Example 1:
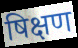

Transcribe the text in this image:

षिक्षण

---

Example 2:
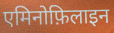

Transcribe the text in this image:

एमिनोफ़िलाइन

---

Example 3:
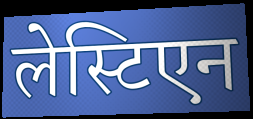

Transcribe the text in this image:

लेस्टिएन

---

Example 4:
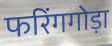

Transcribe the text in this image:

फरिंगगोड़ा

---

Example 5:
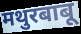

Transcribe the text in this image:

मथुरबाबू